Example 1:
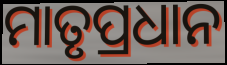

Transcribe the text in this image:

ମାତୃପ୍ରଧାନ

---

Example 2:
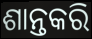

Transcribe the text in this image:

ଶାନ୍ତକରି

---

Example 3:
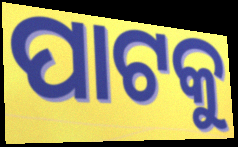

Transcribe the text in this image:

ପାଟକୁ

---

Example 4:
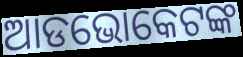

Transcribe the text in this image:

ଆଡଭୋକେଟଙ୍କ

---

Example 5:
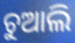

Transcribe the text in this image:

ଚୁଆଲି